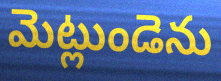
మెట్లుండెను